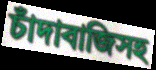
চাঁদাবাজিসহ